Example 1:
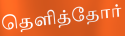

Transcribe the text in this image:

தெளித்தோர்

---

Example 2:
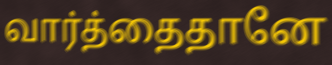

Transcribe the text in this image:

வார்த்தைதானே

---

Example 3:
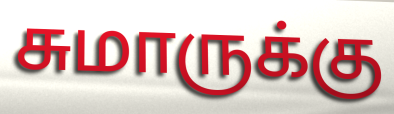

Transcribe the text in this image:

சுமாருக்கு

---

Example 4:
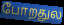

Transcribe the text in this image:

போறதுல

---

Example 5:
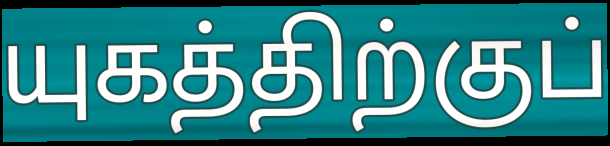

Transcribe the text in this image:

யுகத்திற்குப்